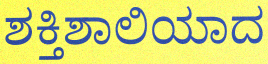
ಶಕ್ತಿಶಾಲಿಯಾದ